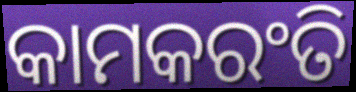
କାମକରଂତି